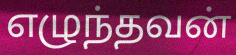
எழுந்தவன்